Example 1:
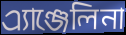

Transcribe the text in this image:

এ্যাঞ্জেলিনা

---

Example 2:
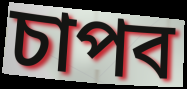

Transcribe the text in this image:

চাপব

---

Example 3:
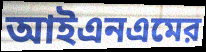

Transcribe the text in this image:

আইএনএমের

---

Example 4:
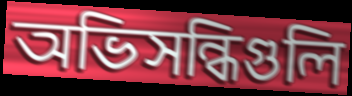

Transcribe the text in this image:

অভিসন্ধিগুলি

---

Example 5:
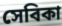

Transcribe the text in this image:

সেবিকা